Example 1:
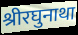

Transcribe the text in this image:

श्रीरघुनाथा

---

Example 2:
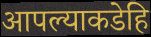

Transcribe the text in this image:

आपल्याकडेहि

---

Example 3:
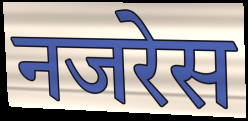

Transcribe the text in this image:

नजरेस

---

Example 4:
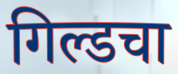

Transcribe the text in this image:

गिल्डचा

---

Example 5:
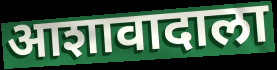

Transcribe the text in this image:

आशावादाला